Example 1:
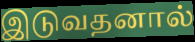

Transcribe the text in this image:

இடுவதனால்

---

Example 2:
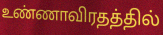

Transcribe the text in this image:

உண்ணாவிரதத்தில்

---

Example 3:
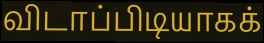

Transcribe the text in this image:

விடாப்பிடியாகக்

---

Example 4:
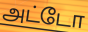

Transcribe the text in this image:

அட்டோ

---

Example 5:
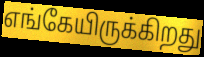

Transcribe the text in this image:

எங்கேயிருக்கிறது